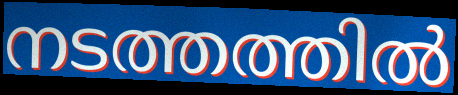
നടത്തത്തിൽ